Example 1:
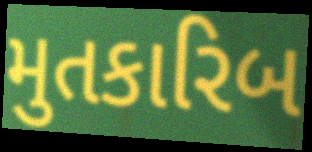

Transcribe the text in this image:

મુતકારિબ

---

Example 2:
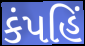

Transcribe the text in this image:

કંપહિં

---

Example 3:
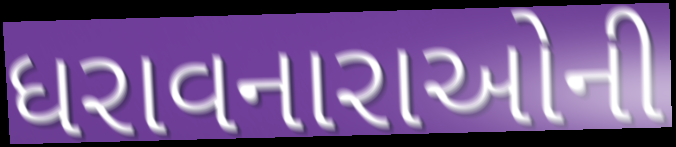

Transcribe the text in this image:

ધરાવનારાઓની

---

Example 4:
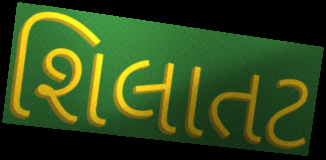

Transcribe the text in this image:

શિલાતટ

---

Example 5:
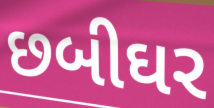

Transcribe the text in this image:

છબીઘર